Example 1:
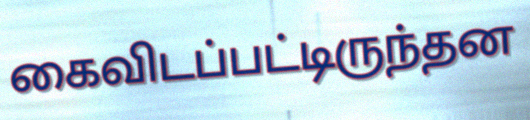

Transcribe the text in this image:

கைவிடப்பட்டிருந்தன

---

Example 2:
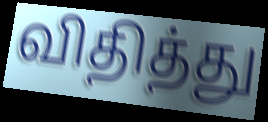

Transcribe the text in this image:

விதித்து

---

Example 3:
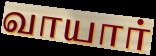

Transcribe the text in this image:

வாயார்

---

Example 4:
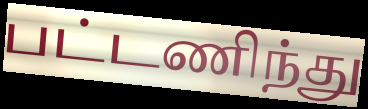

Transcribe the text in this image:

பட்டணிந்து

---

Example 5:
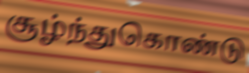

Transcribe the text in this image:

சூழ்ந்துகொண்டு